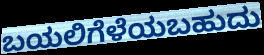
ಬಯಲಿಗೆಳೆಯಬಹುದು